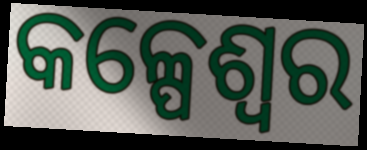
କଳ୍ପେଶ୍ୱର